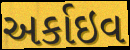
અર્કાઇવ